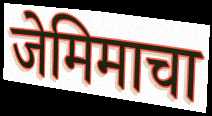
जेमिमाचा